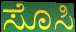
ಸೊಸಿ